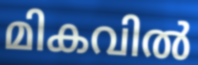
മികവിൽ